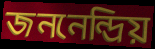
জননেন্দ্রিয়